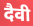
दैवी